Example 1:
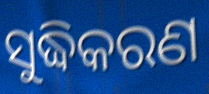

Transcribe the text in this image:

ସୁଦ୍ଧିକରଣ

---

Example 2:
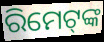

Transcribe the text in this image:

ରିମେଟ୍‍ଙ୍କ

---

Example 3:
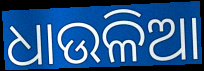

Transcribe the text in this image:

ଧାଉଳିଆ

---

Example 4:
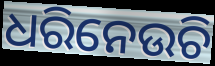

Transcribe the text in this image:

ଧରିନେଉଚି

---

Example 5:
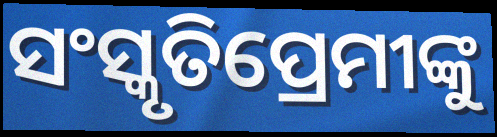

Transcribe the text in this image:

ସଂସ୍କୃତିପ୍ରେମୀଙ୍କୁ